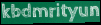
kbdmrityun